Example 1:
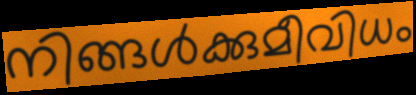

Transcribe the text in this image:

നിങ്ങൾക്കുമീവിധം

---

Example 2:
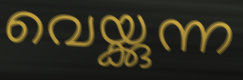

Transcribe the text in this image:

വെയ്ക്കുന്ന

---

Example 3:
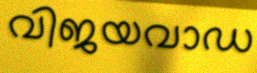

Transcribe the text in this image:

വിജയവാഡ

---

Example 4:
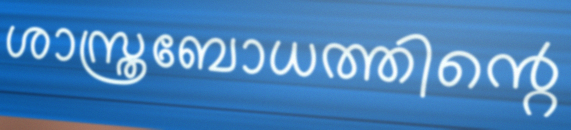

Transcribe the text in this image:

ശാസ്ത്രബോധത്തിന്റെ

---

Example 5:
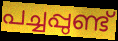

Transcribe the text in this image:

പച്ചപ്പുണ്ട്